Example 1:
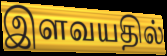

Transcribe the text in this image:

இளவயதில்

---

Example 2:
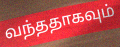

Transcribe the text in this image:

வந்ததாகவும்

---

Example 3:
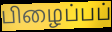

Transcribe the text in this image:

பிழைப்பப்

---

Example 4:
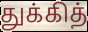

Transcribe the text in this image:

துக்கித்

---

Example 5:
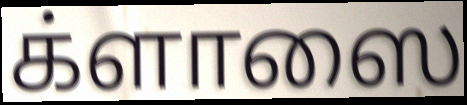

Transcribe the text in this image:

க்ளாஸை